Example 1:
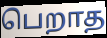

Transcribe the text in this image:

பெறாத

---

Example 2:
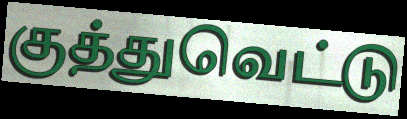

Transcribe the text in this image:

குத்துவெட்டு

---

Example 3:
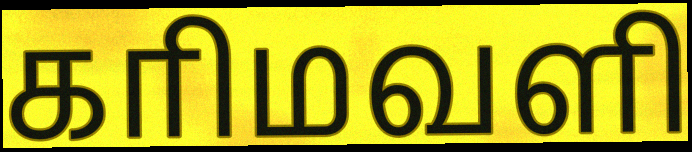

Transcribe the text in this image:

கரிமவளி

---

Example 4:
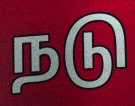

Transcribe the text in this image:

நடு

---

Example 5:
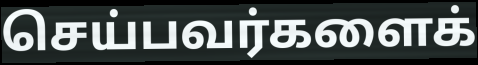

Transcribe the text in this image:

செய்பவர்களைக்